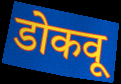
डोकवू